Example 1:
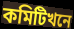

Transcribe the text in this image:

কমিটিখনে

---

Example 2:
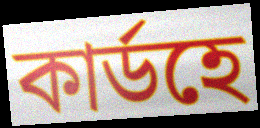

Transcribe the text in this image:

কাৰ্ডহে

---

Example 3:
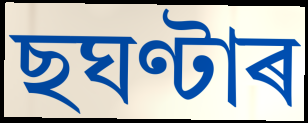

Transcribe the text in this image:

ছঘণ্টাৰ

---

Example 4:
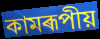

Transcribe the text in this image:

কামৰূপীয়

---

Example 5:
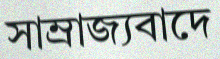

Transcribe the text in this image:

সাম্ৰাজ্যবাদে